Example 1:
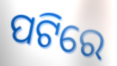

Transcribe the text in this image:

ପଟିରେ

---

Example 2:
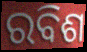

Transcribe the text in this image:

ରବିଶ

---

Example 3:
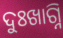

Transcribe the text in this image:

ଦୁଃଖାଗ୍ନି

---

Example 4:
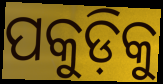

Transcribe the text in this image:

ପକୁଡ଼ିକୁ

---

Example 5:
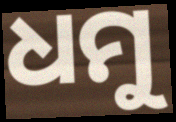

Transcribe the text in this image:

ଧମୁ